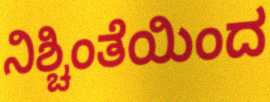
ನಿಶ್ಚಿಂತೆಯಿಂದ